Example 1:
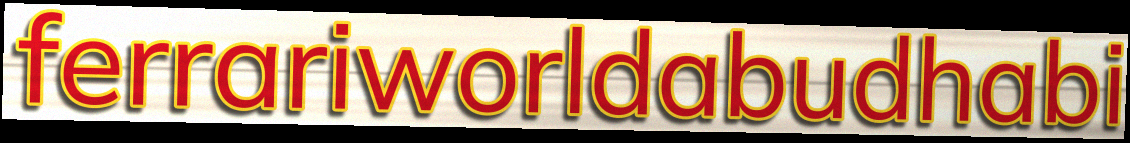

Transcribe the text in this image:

ferrariworldabudhabi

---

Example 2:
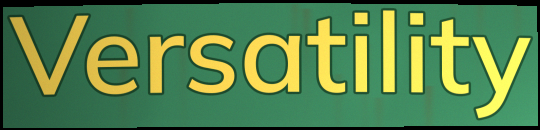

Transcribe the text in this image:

Versatility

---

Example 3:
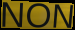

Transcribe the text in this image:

NON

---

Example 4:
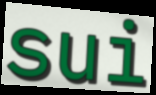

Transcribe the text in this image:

sui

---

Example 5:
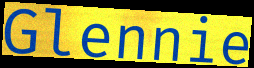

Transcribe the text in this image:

Glennie